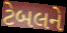
ટેબલને